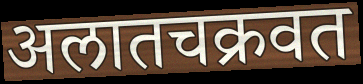
अलातचक्रवत